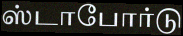
ஸ்டாபோர்டு